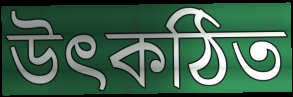
উৎকঠিত